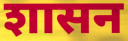
शासन